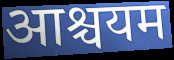
आश्चयम